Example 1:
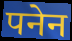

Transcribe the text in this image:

पनेन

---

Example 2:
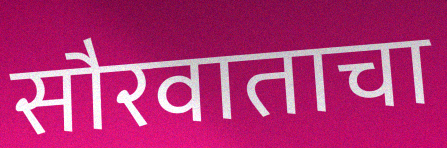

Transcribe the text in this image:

सौरवाताचा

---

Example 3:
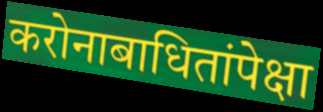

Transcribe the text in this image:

करोनाबाधितांपेक्षा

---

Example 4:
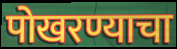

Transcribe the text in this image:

पोखरण्याचा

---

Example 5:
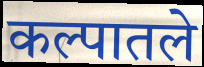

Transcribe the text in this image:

कल्पातले